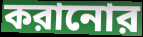
করানোর